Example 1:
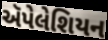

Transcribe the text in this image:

ઍપેલેશિયન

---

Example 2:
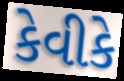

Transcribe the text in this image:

કેવીકે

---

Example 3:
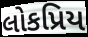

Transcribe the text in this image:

લોકપ્રિય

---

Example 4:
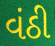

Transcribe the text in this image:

વંઠી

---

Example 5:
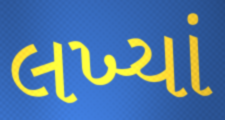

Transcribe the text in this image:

લખ્યાં